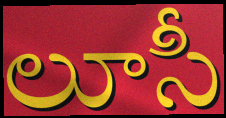
లూసీ